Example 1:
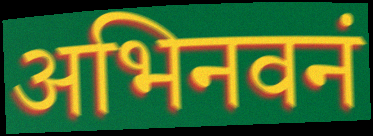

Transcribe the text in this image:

अभिनवनं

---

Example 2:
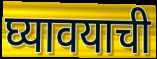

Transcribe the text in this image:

घ्यावयाची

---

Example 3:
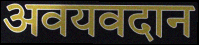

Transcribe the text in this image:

अवयवदान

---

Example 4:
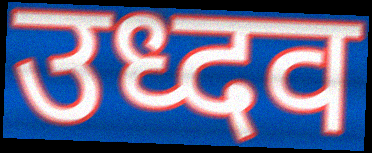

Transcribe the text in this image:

उध्दव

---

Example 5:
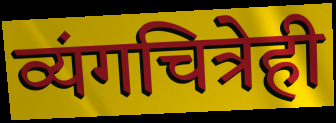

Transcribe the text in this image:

व्यंगचित्रेही